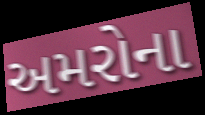
અમરોના